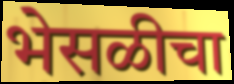
भेसळीचा